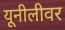
यूनीलीवर